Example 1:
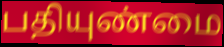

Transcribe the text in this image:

பதியுண்மை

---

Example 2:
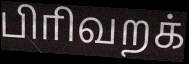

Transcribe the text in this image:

பிரிவறக்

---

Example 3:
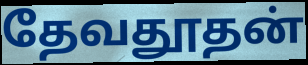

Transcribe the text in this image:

தேவதூதன்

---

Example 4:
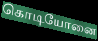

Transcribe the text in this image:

கொடியோனை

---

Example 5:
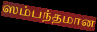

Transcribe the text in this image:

ஸம்பந்தமான